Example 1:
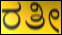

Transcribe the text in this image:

ರತೀ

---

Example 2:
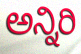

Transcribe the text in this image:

ಅನ್ನಿರಿ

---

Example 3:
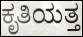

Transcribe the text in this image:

ಕೃತಿಯತ್ತ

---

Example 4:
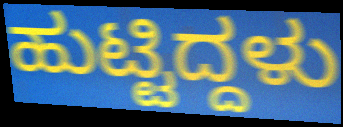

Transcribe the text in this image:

ಹುಟ್ಟಿದ್ದಳು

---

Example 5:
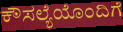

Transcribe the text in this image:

ಕೌಸಲ್ಯೆಯೊಂದಿಗೆ